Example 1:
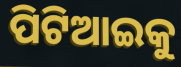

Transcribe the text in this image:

ପିଟିଆଇକୁ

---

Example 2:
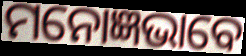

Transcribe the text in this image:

ମନୋଜ୍ଞଭାବେ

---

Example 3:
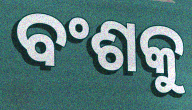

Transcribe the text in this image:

ବଂଶକୁ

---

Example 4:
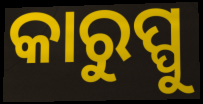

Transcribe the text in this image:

କାରୁପ୍ପୁ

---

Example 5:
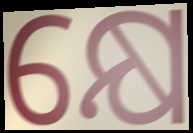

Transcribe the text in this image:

କ୍ଷେ